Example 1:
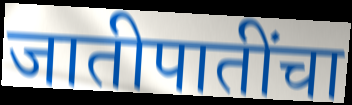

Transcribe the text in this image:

जातीपातींचा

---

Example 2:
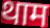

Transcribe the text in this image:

थाम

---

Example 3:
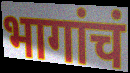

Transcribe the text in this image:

भागांचं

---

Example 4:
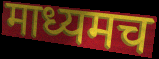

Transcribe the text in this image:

माध्यमच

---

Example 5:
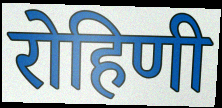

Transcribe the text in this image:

रोहिणी